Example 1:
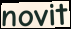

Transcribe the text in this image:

novit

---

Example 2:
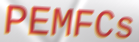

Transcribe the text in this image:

PEMFCs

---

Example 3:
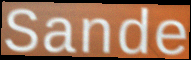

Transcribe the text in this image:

Sande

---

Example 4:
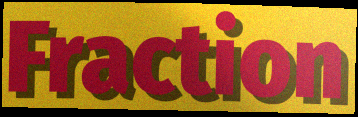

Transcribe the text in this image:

Fraction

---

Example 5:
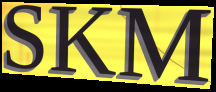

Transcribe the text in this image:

SKM